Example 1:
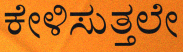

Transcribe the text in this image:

ಕೇಳಿಸುತ್ತಲೇ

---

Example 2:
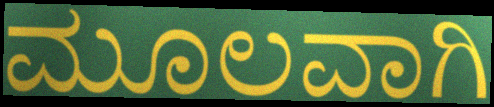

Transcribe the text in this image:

ಮೂಲವಾಗಿ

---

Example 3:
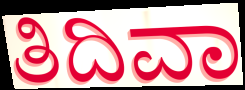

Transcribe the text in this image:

ತಿದಿವಾ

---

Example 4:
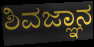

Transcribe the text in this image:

ಶಿವಜ್ಞಾನ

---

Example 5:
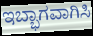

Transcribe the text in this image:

ಇಬ್ಭಾಗವಾಗಿಸಿ